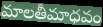
మాలతీమాధవం